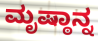
ಮೃಷ್ಠಾನ್ನ